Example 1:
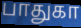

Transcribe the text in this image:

பாதுகா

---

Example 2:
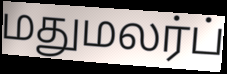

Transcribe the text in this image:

மதுமலர்ப்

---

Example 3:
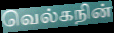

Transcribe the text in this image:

வெல்கநின்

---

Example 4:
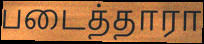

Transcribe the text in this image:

படைத்தாரா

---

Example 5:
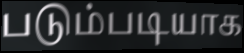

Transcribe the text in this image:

படும்படியாக